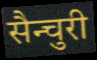
सैन्चुरी